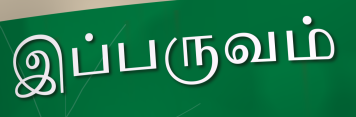
இப்பருவம்